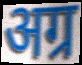
अग्र